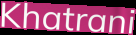
Khatrani